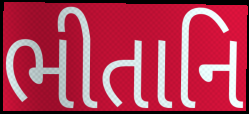
ભીતાનિ